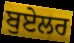
ਬੁਏਲਰ